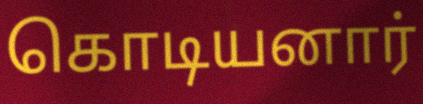
கொடியனார்